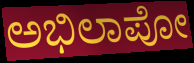
ಅಭಿಲಾಪೋ